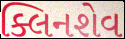
ક્લિનશેવ